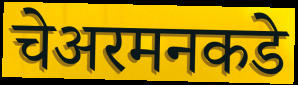
चेअरमनकडे